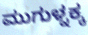
ಮುಗುಳ್ನಕ್ಕ